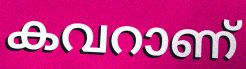
കവറാണ്